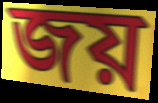
জয়